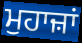
ਮੁਹਾਜ਼ਾਂ